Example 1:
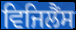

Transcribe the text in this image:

ਵਿਜਿਲੈਂਸ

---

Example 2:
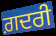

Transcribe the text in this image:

ਗ਼ਦਰੀ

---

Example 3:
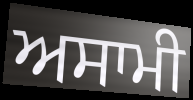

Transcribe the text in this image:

ਅਸਾਮੀ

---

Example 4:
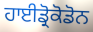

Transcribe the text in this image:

ਹਾਈਡ੍ਰੋਕੋਡੋਨ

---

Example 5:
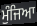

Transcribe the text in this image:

ਮੁੰਜਿਆ